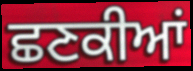
ਛਣਕੀਆਂ